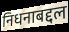
निधनाबद्दल